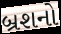
બ્રશનો